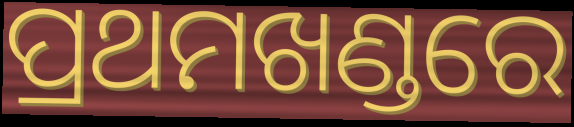
ପ୍ରଥମଖଣ୍ଡରେ